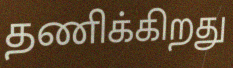
தணிக்கிறது